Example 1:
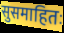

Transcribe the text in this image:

सुसमाहितः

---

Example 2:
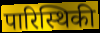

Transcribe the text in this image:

पारिस्थिकी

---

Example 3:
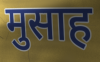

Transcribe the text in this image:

मुसाह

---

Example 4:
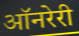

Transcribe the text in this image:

ऑनरेरी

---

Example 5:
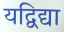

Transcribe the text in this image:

यद्विद्या